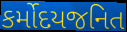
કર્મોદયજનિત